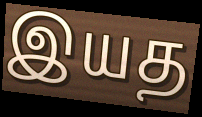
இயத